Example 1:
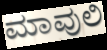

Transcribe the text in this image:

ಮಾವುಲಿ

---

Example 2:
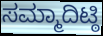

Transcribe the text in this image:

ಸಮ್ಮಾದಿಟ್ಠಿ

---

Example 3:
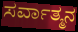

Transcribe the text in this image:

ಸರ್ವಾತ್ಮನ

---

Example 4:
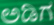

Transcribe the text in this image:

ಅಡಿಗ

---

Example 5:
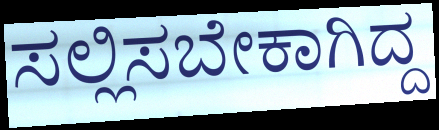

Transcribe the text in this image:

ಸಲ್ಲಿಸಬೇಕಾಗಿದ್ದ